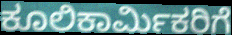
ಕೂಲಿಕಾರ್ಮಿಕರಿಗೆ